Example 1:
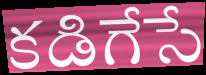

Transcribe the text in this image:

కడిగేసే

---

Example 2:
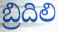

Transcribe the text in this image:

బ్రిదిలి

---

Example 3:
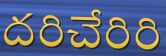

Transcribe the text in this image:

దరిచేరిరి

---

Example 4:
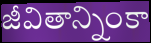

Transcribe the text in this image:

జీవితాన్నింకా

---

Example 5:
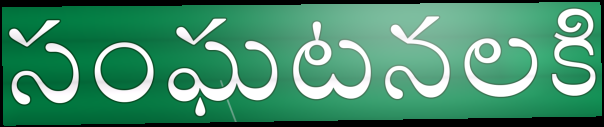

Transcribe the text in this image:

సంఘటనలకి